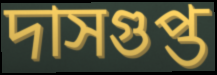
দাসগুপ্ত